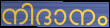
നിദാനം